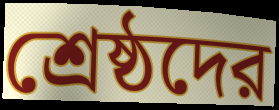
শ্রেষ্ঠদের